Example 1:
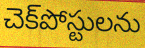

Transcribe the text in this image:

చెక్‌పోస్టులను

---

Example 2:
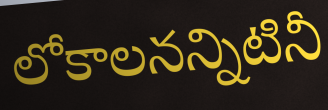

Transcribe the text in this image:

లోకాలనన్నిటినీ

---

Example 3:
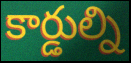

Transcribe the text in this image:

కార్డుల్ని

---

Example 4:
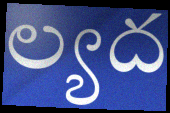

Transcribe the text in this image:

ల్యద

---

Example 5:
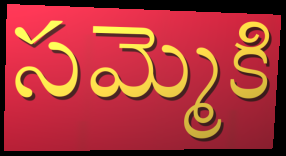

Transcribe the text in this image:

సమ్మెకి